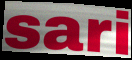
sari